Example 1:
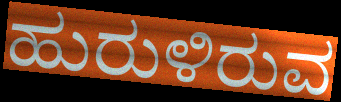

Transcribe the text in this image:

ಹುರುಳಿರುವ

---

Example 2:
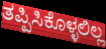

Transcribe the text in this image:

ತಪ್ಪಿಸಿಕೊಳ್ಳಲಿಲ್ಲ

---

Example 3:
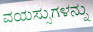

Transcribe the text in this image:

ವಯಸ್ಸುಗಳನ್ನು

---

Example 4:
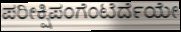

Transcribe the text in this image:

ಪರೀಕ್ಷಿಪಂಗೆಂಟೆರ್ದೆಯೇ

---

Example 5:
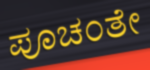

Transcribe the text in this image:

ಪೂಚಂತೇ